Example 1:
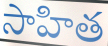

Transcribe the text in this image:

సాహిత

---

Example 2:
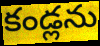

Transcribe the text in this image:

కండ్లను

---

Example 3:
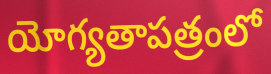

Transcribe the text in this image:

యోగ్యతాపత్రంలో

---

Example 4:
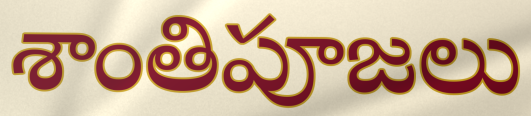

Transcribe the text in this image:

శాంతిపూజలు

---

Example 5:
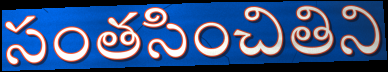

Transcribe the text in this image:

సంతసించితిని